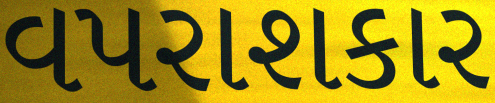
વપરાશકાર